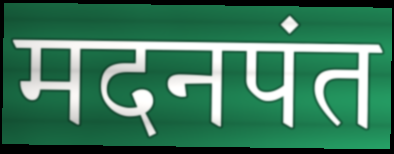
मदनपंत